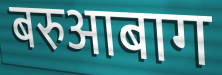
बरुआबाग